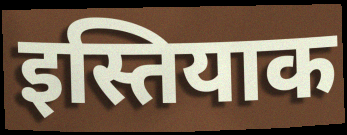
इस्तियाक